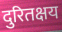
दुरितक्षय